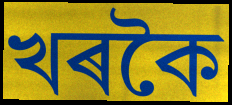
খৰকৈ